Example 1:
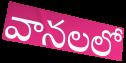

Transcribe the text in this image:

వానలలో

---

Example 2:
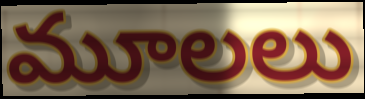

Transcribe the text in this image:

మూలలు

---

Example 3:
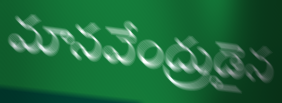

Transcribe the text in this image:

మానవేంద్రుడైన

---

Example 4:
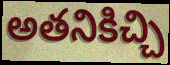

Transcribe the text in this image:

అతనికిచ్చి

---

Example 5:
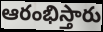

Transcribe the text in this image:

ఆరంభిస్తారు